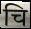
चि